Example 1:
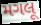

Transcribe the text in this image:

મગલૂ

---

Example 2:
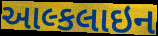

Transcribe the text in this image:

આલ્કલાઇન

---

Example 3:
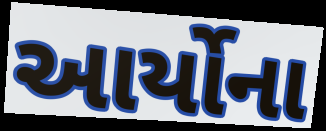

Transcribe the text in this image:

આર્યોના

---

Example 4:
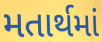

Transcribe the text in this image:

મતાર્થમાં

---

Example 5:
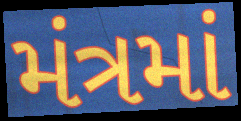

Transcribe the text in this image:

મંત્રમાં